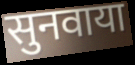
सुनवाया